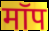
मॉप